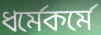
ধর্মেকর্মে